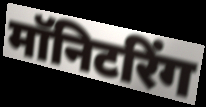
मॉनिटरिंग